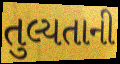
તુલ્યતાની